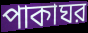
পাকাঘর